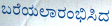
ಬರೆಯಲಾರಂಭಿಸಿದ